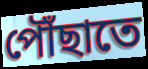
পৌঁছাতে